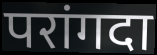
परांगदा